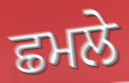
ਛਮਲੇ